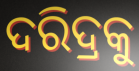
ଦରିଦ୍ରକୁ